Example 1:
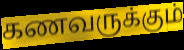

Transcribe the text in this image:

கணவருக்கும்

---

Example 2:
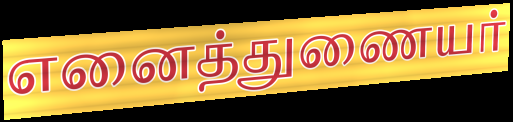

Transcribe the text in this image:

எனைத்துணையர்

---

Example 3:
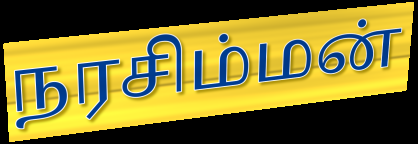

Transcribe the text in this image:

நரசிம்மன்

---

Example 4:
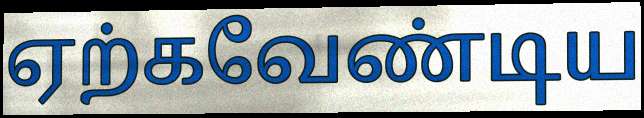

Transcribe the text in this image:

ஏற்கவேண்டிய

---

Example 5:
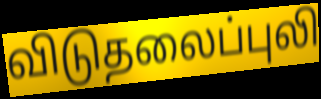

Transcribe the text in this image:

விடுதலைப்புலி